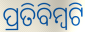
ପ୍ରତିବିମ୍ବଟି